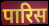
पारिस